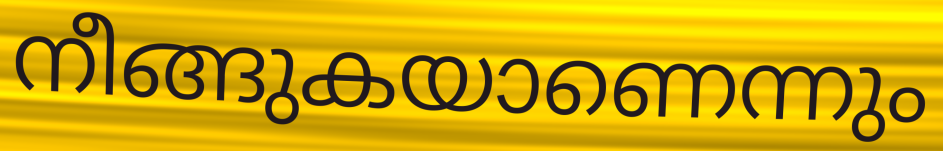
നീങ്ങുകയാണെന്നും